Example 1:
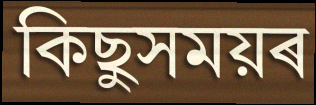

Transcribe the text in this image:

কিছুসময়ৰ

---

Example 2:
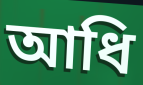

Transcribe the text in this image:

আধি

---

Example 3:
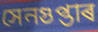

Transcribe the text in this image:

সেনগুপ্তাৰ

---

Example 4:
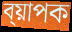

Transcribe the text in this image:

ব্য়াপক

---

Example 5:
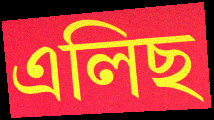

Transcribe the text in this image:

এলিছ